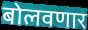
बोलवणार